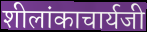
शीलांकाचार्यजी